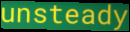
unsteady